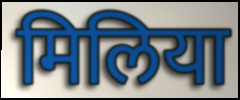
मिलिया